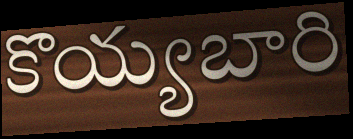
కొయ్యబారి